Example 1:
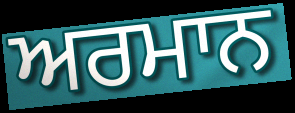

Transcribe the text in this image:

ਅਰਮਾਨ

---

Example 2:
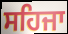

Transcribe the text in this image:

ਸਹਿਜਾ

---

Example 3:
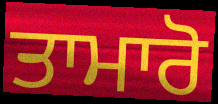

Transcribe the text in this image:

ਤਾਮਾਰੋ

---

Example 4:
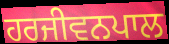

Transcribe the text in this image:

ਹਰਜੀਵਨਪਾਲ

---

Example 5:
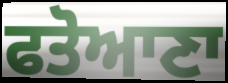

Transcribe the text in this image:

ਫਤੋਆਣਾ